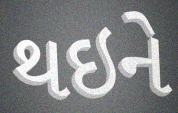
થઇને